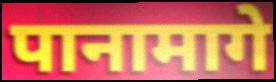
पानामागे